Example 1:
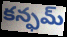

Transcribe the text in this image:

కన్ఫమ్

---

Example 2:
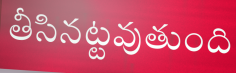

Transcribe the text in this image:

తీసినట్టవుతుంది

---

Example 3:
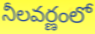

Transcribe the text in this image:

నీలవర్ణంలో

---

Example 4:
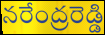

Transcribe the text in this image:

నరేంద్రరెడ్డి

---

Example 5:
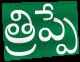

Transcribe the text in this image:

త్రిప్పే